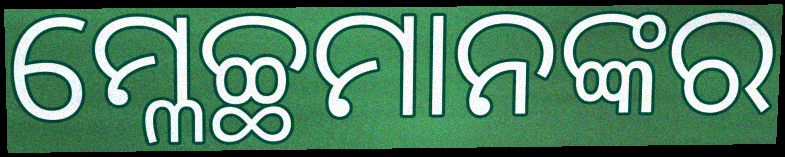
ମ୍ଳେଚ୍ଛମାନଙ୍କର